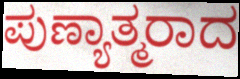
ಪುಣ್ಯಾತ್ಮರಾದ